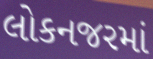
લોકનજરમાં